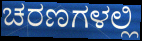
ಚರಣಗಳಲ್ಲಿ